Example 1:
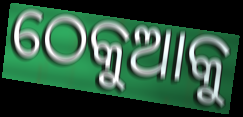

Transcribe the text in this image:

ଠେକୁଆକୁ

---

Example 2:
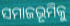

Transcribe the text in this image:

ସମାଜଭୂମିକୁ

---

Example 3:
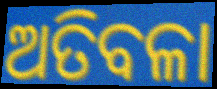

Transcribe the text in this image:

ଅତିବଳା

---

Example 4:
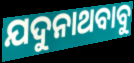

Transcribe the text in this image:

ଯଦୁନାଥବାବୁ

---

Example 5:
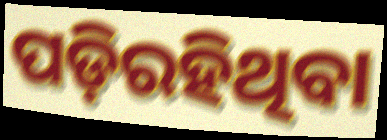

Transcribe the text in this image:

ପଡ଼ିରହିଥିବା